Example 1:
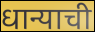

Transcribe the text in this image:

धान्याची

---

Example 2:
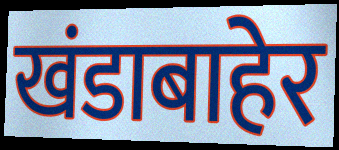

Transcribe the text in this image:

खंडाबाहेर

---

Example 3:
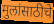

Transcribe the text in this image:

मुलांसाठीचे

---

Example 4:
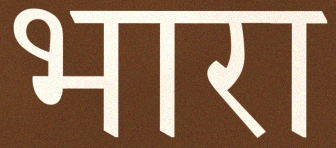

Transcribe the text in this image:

भारा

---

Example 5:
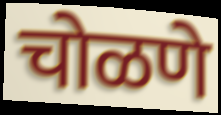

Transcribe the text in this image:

चोळणे